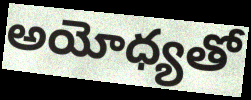
అయోధ్యతో